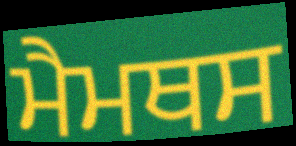
ਮੈਮਥਸ